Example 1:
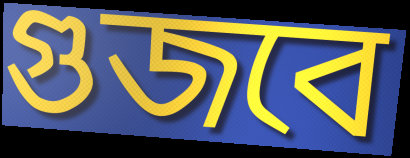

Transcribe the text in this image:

গুজবে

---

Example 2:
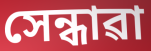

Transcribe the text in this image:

সেন্ধাৱা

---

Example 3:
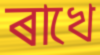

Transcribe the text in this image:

ৰাখে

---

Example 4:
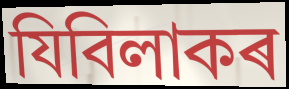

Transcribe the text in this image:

যিবিলাকৰ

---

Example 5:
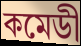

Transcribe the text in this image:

কমেডী